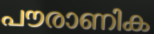
പൗരാണിക